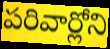
పరివార్లోని